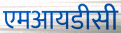
एमआयडीसी